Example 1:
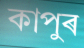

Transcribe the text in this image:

কাপুৰ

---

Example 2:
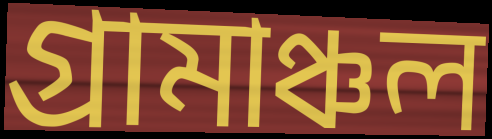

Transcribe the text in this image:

গ্ৰামাঞ্চল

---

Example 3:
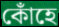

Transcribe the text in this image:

কোঁহে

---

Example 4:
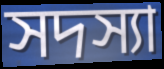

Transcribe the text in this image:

সদস্যা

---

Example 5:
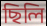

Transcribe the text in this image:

ছিলি